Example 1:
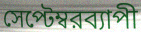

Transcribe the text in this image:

সেপ্টেম্বরব্যাপী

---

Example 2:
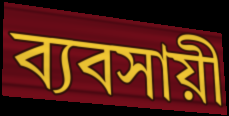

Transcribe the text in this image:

ব্যবসায়ী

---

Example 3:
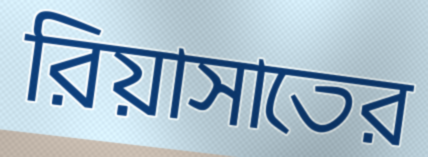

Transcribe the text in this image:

রিয়াসাতের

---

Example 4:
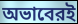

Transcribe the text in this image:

অভাবেরই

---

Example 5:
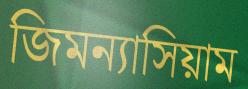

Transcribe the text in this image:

জিমন্যাসিয়াম